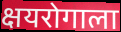
क्षयरोगाला